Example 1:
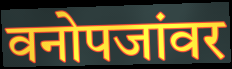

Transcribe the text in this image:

वनोपजांवर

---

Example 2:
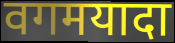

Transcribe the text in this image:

वगमयादा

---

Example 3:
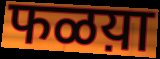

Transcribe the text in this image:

फळय़ा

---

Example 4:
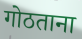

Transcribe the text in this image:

गोठताना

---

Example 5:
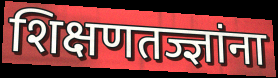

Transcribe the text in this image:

शिक्षणतज्ज्ञांना